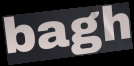
bagh